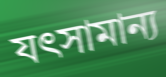
যৎসামান্য